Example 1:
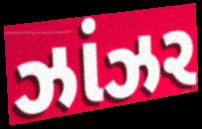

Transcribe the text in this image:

ઝાંઝર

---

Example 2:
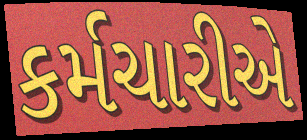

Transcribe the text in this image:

કર્મચારીએ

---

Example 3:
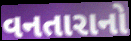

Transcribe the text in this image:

વનતારાનો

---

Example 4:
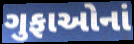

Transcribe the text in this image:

ગુફાઓનાં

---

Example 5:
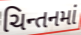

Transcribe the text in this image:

ચિન્તનમાં